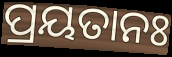
ପ୍ରୟତାନଃ